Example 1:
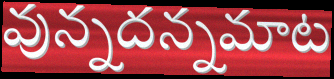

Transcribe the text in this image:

వున్నదన్నమాట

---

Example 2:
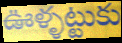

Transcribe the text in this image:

ఊళ్ళట్టుకు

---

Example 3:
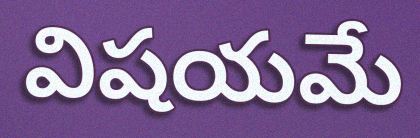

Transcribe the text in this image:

విషయమే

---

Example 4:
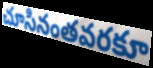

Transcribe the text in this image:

చూసినంతవరకూ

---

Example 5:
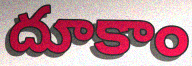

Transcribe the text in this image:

దూకాం